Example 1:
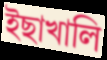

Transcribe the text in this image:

ইছাখালি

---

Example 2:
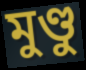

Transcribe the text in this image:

মুণ্ডু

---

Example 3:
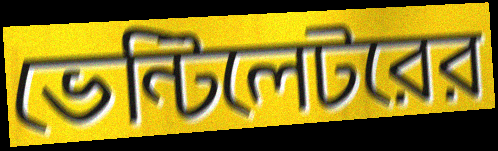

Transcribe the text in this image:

ভেন্টিলেটরের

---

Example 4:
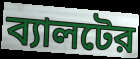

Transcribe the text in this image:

ব্যালটের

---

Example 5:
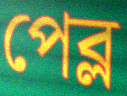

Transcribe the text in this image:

পেব্ল